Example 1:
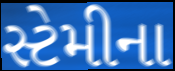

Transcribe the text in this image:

સ્ટેમીના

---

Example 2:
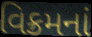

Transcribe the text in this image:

વિક્રમનાં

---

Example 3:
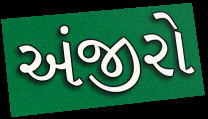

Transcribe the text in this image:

અંજીરો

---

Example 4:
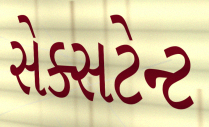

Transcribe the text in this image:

સેક્સટેન્ટ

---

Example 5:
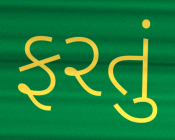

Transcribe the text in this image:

ફરતું